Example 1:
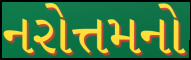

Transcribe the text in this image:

નરોત્તમનો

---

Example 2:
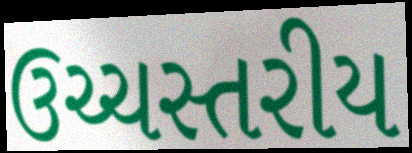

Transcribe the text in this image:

ઉચ્ચસ્તરીય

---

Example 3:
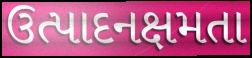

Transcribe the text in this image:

ઉત્પાદનક્ષમતા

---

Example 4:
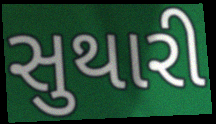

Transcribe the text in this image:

સુથારી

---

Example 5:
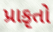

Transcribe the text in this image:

પ્રાકૃતો